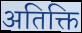
अतिक्ति